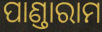
ପାଣ୍ଡାରାମ